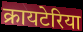
क्रायटेरिया